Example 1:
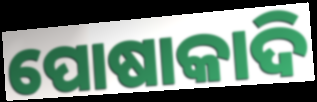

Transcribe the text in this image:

ପୋଷାକାଦି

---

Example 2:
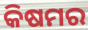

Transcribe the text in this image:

କିଷମର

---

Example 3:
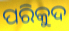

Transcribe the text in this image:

ପରିକୁଦ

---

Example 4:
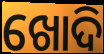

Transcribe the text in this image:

ଖୋଦି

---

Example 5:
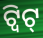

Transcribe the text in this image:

ଟ୍ୱିଟ୍